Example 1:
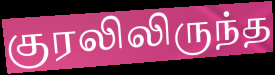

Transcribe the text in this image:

குரலிலிருந்த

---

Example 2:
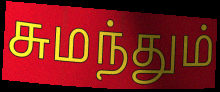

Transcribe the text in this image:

சுமந்தும்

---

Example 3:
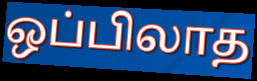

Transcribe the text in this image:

ஒப்பிலாத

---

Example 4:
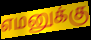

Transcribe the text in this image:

எமனுக்கு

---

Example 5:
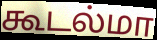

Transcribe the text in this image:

கூடல்மா